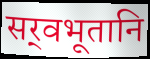
सर्वभूतानि